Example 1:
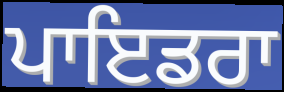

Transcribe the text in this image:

ਪਾਇਡਰਾ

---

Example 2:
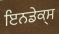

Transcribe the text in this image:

ਇਨਡੇਕ੍ਸ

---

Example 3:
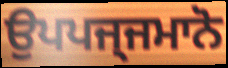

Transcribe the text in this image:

ਉਪਪਜ੍ਜਮਾਨੋ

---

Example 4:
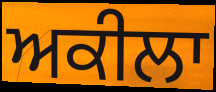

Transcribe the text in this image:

ਅਕੀਲਾ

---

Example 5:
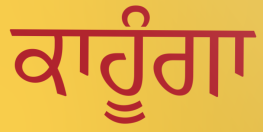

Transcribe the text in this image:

ਕਾਹੂੰਗਾ